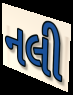
નલી